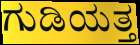
ಗುಡಿಯತ್ತ